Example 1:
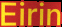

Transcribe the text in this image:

Eirin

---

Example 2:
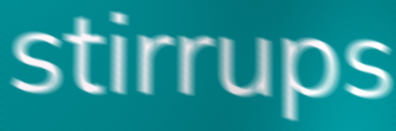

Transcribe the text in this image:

stirrups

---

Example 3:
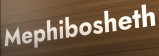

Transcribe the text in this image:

Mephibosheth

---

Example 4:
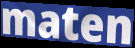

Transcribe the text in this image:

maten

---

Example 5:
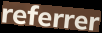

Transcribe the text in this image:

referrer